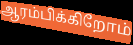
ஆரம்பிக்கிறோம்